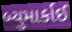
બ્યુમાર્કાઈ